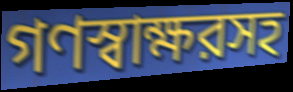
গণস্বাক্ষরসহ